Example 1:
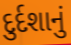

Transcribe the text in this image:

દુર્દશાનું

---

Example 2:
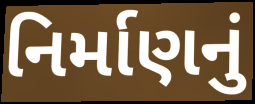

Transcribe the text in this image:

નિર્માણનું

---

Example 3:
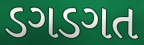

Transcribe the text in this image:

ડગડગત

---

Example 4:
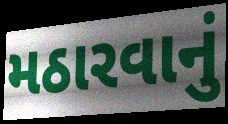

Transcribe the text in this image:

મઠારવાનું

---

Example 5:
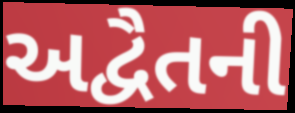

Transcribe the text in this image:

અદ્વૈતની